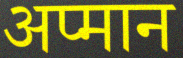
अप्मान